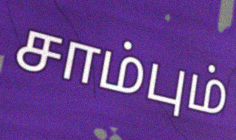
சாம்பும்